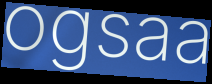
ogsaa